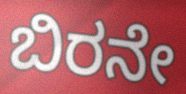
ಬಿರನೇ